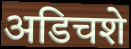
अडिचशे